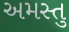
અમસ્તુ